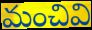
మంచివి